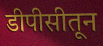
डीपीसीतून